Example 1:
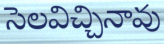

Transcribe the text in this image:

సెలవిచ్చినావు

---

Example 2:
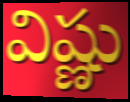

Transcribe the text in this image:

విష్ణు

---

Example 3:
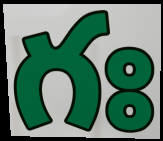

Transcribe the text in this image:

గః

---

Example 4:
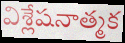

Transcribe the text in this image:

విశ్లేషనాత్మక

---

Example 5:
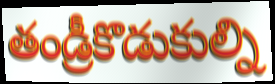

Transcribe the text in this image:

తండ్రీకొడుకుల్ని